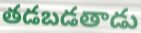
తడబడతాడు